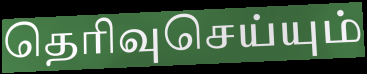
தெரிவுசெய்யும்